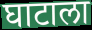
घाटाला